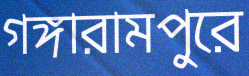
গঙ্গারামপুরে